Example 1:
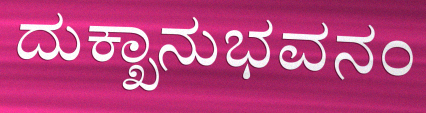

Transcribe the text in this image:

ದುಕ್ಖಾನುಭವನಂ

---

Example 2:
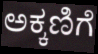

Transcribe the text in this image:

ಅಕ್ಕಣಿಗೆ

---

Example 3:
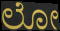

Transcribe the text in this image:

ಲೋ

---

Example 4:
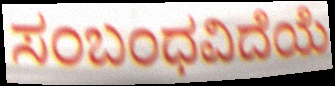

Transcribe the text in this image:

ಸಂಬಂಧವಿದೆಯೆ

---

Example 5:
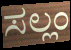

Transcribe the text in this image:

ಸಲ್ಲಂ